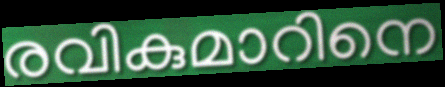
രവികുമാറിനെ